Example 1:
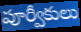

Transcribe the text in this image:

పూర్వీకులు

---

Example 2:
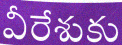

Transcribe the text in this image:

వీరేశుకు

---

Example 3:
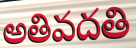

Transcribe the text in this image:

అతివదతి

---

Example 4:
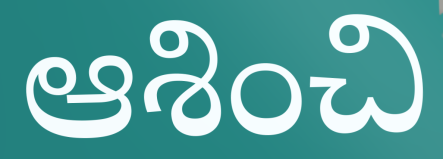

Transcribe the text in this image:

ఆశించి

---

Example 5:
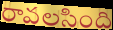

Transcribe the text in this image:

రావలసింది